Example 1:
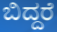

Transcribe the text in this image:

ಬಿದ್ದರೆ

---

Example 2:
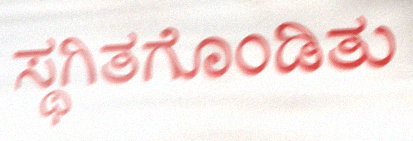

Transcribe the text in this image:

ಸ್ಥಗಿತಗೊಂಡಿತು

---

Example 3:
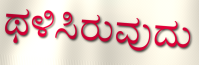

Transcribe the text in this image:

ಥಳಿಸಿರುವುದು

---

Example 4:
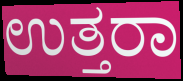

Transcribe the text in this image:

ಉತ್ತರಾ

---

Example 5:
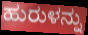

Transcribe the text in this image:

ಹುರುಳನ್ನು